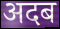
अदब